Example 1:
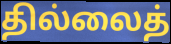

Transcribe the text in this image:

தில்லைத்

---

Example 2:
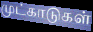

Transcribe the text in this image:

முட்காடுகள்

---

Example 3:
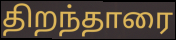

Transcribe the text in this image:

திறந்தாரை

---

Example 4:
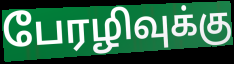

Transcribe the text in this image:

பேரழிவுக்கு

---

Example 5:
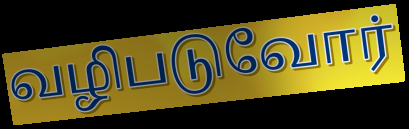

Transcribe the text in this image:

வழிபடுவோர்